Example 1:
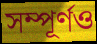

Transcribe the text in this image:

সম্পূর্ণও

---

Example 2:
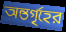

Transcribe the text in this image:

অন্তর্গৃহের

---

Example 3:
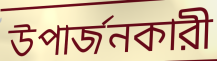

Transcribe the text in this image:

উপার্জনকারী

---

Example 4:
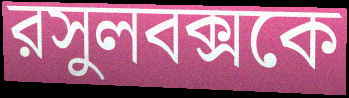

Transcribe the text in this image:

রসুলবক্সকে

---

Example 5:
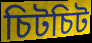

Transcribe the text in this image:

চিটচিট